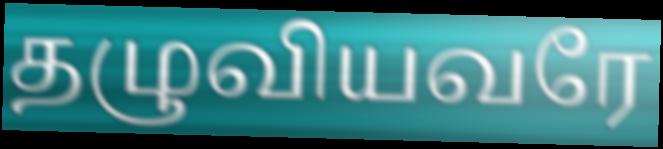
தழுவியவரே